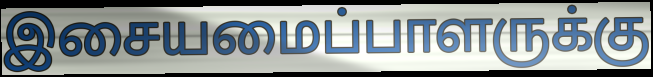
இசையமைப்பாளருக்கு